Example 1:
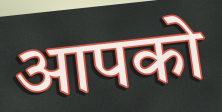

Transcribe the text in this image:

आपको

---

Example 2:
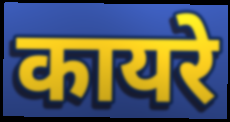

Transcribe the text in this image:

कायरे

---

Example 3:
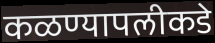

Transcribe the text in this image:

कळण्यापलीकडे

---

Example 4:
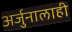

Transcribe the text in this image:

अर्जुनालाही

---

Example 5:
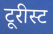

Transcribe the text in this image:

टूरीस्ट